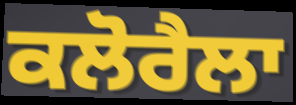
ਕਲੋਰੈਲਾ